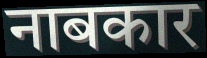
नाबकार